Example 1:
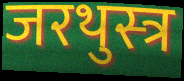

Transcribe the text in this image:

जरथुस्‍त्र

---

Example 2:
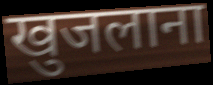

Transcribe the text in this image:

खुजलाना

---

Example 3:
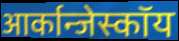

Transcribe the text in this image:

आर्कान्जेस्कॉय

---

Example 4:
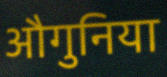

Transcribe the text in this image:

औगुनिया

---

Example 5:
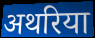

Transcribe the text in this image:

अथरिया